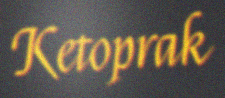
Ketoprak